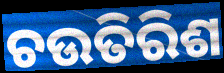
ଚଉତିରିଶ